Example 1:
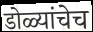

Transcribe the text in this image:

डोळ्यांचेच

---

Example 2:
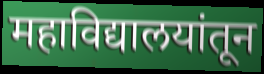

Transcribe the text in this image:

महाविद्यालयांतून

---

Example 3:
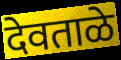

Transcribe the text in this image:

देवताळे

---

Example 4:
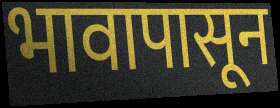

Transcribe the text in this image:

भावापासून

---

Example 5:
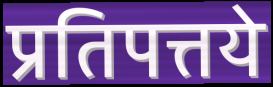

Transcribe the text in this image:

प्रतिपत्तये